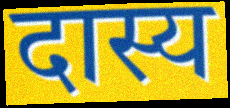
दास्य